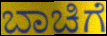
ಬಾಚಿಗೆ